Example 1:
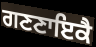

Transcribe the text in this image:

ਗਣਣਾਇਕੈ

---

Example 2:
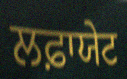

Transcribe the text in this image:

ਲਫ਼ਾਯੇਟ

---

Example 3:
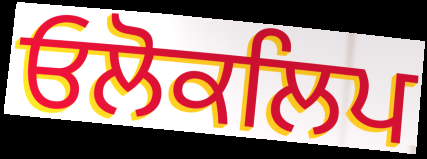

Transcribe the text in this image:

ਓਲੋਕਲਿਪ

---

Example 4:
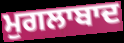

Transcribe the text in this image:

ਮੁਗਲਾਬਾਦ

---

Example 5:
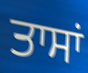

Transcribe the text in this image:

ਤਾਸਾਂ